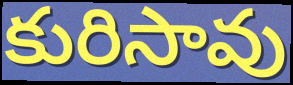
కురిసావు